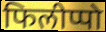
फिलीप्पो